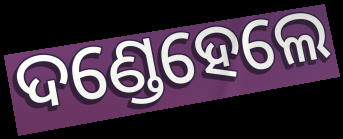
ଦଣ୍ଡେହେଲେ